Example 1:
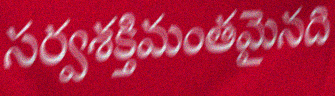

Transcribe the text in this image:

సర్వశక్తిమంతమైనది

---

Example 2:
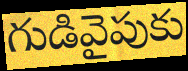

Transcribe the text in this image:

గుడివైపుకు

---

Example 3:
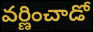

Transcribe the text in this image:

వర్ణించాడో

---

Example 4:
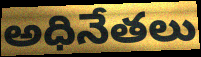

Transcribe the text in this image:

అధినేతలు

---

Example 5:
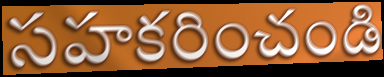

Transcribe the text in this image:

సహకరించండి